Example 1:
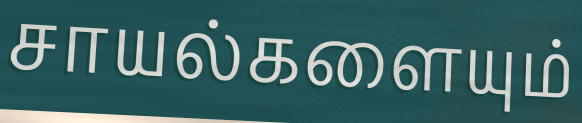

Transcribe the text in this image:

சாயல்களையும்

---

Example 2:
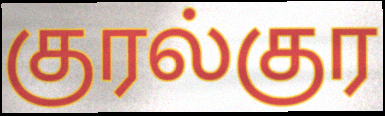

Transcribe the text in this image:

குரல்குர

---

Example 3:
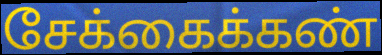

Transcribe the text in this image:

சேக்கைக்கண்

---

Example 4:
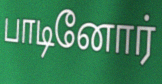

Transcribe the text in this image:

பாடினோர்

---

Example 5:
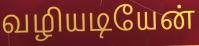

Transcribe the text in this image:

வழியடியேன்